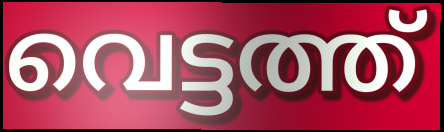
വെട്ടത്ത്